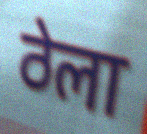
ठेला